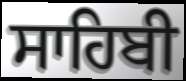
ਸਾਹਿਬੀ